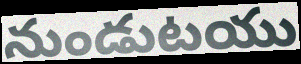
నుండుటయు